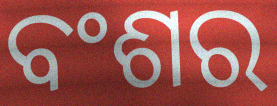
ବଂଶର